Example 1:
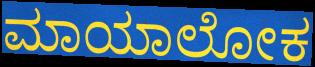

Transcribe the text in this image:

ಮಾಯಾಲೋಕ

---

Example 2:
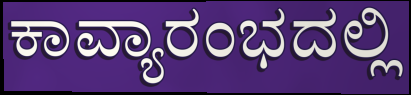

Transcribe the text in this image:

ಕಾವ್ಯಾರಂಭದಲ್ಲಿ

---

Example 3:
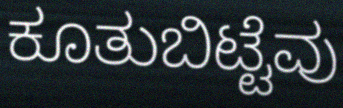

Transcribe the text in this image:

ಕೂತುಬಿಟ್ಟೆವು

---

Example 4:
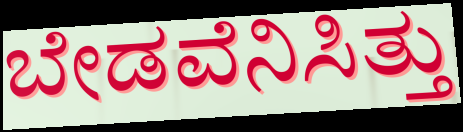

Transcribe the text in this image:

ಬೇಡವೆನಿಸಿತ್ತು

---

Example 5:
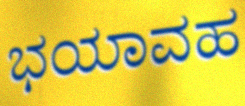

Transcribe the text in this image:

ಭಯಾವಹ